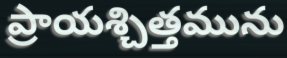
ప్రాయశ్చిత్తమును